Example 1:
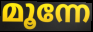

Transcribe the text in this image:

മൂന്നേ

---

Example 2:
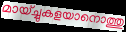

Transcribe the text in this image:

മായ്ച്ചുകളയാനൊത്തു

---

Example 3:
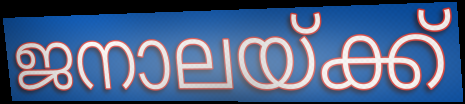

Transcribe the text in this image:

ജനാലയ്ക്ക്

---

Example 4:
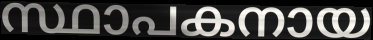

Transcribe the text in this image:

സ്ഥാപകനായ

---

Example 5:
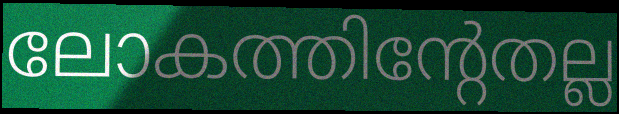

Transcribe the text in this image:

ലോകത്തിന്റേതല്ല